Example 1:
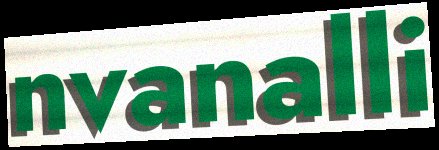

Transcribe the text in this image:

nvanalli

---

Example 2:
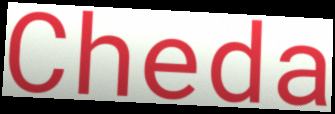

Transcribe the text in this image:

Cheda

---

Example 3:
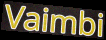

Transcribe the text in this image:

Vaimbi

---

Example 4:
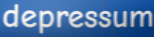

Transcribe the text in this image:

depressum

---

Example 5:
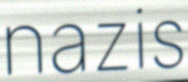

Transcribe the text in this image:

nazis